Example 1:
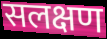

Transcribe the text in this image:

सलक्षण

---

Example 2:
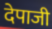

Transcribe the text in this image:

देपाजी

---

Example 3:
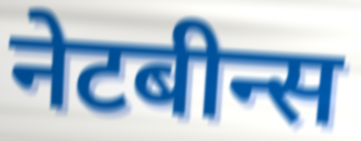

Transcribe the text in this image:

नेटबीन्स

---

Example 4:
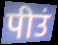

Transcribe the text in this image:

पीउं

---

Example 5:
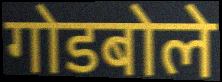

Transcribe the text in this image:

गोडबोले